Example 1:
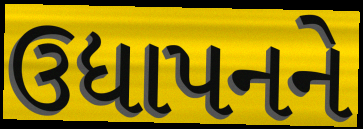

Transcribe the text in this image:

ઉદ્યાપનને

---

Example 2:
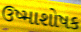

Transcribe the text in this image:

ઉષ્માશોષક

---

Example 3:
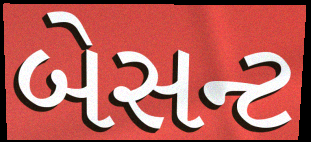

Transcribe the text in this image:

બેસન્ટ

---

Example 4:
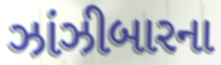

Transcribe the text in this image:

ઝાંઝીબારના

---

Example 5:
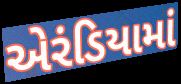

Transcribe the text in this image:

એરંડિયામાં